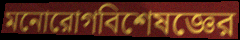
মনোরোগবিশেষজ্ঞের